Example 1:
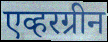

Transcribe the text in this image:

एव्हरग्रीन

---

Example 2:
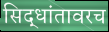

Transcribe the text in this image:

सिद्धांतावरच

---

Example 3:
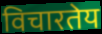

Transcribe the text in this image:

विचारतेय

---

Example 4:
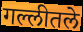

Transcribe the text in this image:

गल्लीतले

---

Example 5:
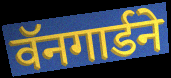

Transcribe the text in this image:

वॅनगार्डने